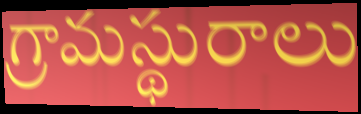
గ్రామస్థురాలు